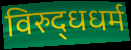
विरुद्धधर्म